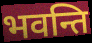
भवन्ति